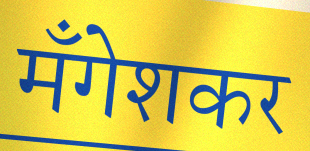
मँगेशकर